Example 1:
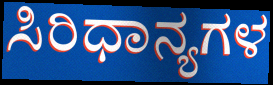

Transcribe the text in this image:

ಸಿರಿಧಾನ್ಯಗಳ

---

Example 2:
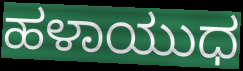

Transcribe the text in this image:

ಹಳಾಯುಧ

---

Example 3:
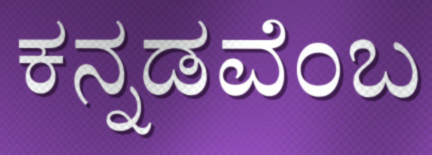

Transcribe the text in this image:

ಕನ್ನಡವೆಂಬ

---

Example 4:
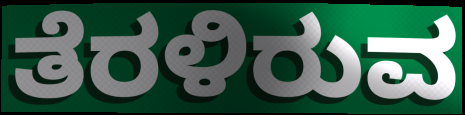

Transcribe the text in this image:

ತೆರಳಿರುವ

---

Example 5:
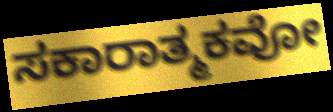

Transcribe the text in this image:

ಸಕಾರಾತ್ಮಕವೋ